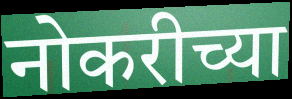
नोकरीच्या